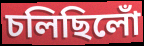
চলিছিলোঁ